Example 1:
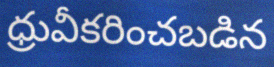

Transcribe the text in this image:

ధ్రువీకరించబడిన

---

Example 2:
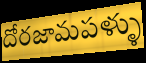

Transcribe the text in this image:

దోరజామపళ్ళు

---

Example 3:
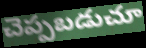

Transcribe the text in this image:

చెప్పబడుచూ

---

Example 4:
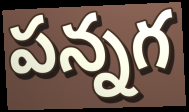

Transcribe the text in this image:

పన్నగ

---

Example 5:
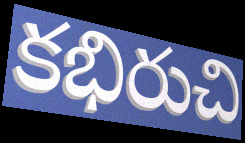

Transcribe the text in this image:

కభిరుచి